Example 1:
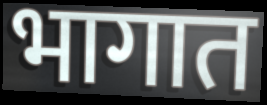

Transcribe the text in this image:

भागात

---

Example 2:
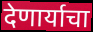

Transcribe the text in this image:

देणार्याचा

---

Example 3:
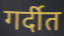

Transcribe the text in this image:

गर्दीत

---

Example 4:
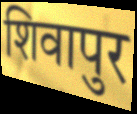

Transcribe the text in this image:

शिवापुर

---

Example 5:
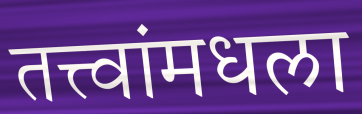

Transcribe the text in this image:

तत्त्वांमधला